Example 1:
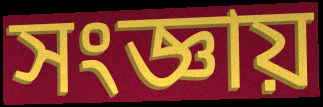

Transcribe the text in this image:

সংজ্ঞায়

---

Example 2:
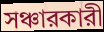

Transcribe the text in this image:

সঞ্চারকারী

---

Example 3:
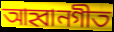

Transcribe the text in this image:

আহ্বানগীত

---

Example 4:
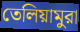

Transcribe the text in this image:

তেলিয়ামুরা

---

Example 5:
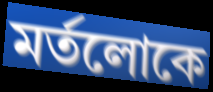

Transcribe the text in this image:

মর্তলোকে